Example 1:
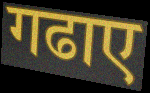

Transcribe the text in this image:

गढाए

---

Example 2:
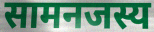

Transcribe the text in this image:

सामनजस्य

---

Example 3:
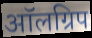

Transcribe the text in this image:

ऑलग्रिप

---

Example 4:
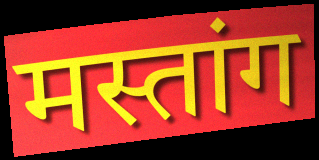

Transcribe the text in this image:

मस्तांग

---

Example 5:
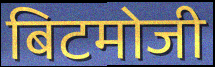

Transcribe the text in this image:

बिटमोजी